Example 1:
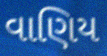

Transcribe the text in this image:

વાણિય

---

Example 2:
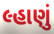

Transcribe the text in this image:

લ્હાણું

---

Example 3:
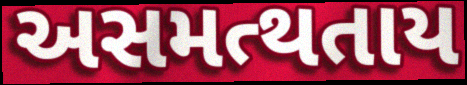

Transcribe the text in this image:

અસમત્થતાય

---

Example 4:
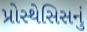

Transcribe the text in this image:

પ્રોસ્થેસિસનું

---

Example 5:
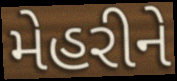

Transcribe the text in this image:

મેહરીને